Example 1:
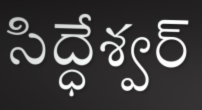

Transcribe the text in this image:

సిద్ధేశ్వర్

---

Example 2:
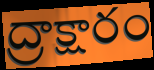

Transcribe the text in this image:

ద్రాక్షారం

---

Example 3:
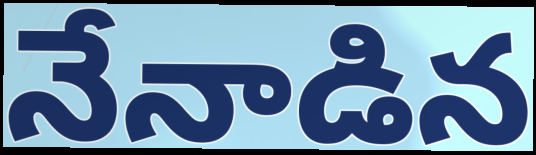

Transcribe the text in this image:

నేనాడిన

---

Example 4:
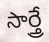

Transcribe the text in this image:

సార్త్రే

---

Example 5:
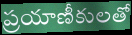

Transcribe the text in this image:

ప్రయాణీకులతో